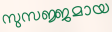
സുസജ്ജമായ